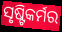
ସୃଷ୍ଟିକର୍ମର